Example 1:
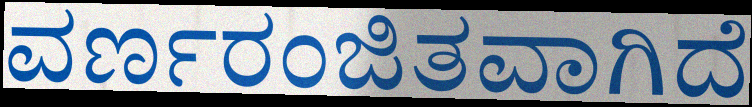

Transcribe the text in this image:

ವರ್ಣರಂಜಿತವಾಗಿದೆ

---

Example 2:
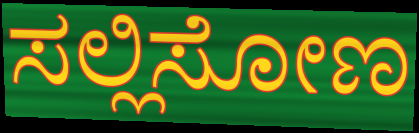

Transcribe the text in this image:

ಸಲ್ಲಿಸೋಣ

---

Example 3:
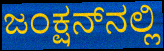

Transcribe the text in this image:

ಜಂಕ್ಷನ್‌ನಲ್ಲಿ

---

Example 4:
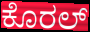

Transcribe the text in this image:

ಕೊರಲ್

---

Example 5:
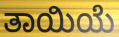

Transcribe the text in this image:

ತಾಯಿಯೆ